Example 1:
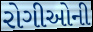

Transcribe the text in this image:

રોગીઓની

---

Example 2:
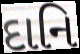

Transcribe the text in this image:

દાનિ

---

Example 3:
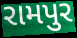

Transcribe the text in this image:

રામપુર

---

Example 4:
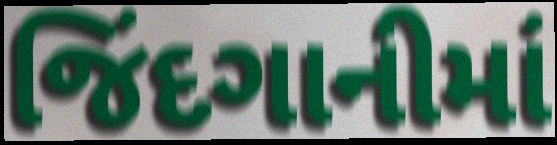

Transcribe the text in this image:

જિંદગાનીમાં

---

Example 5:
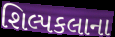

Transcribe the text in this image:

શિલ્પકલાના